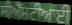
ਸੀਐੱਸਟੀਆਈ